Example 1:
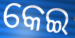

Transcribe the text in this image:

କେଇ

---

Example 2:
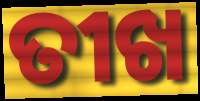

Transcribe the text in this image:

ତୀଖ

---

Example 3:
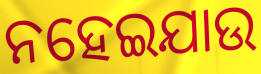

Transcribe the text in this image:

ନହେଇଯାଉ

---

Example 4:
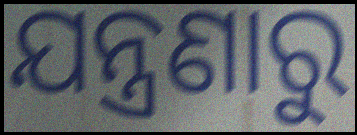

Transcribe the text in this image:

ଯନ୍ତ୍ରଣାରୁ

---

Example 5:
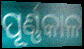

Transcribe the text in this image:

ପୂର୍ଣ୍ଣକାଳ